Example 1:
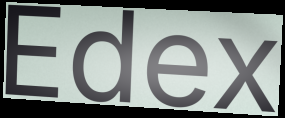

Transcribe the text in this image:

Edex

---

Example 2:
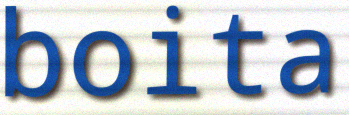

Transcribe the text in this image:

boita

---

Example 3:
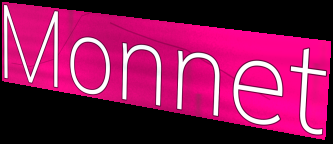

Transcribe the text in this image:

Monnet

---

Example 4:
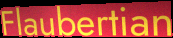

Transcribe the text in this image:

Flaubertian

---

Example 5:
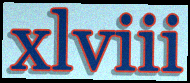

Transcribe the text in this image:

xlviii